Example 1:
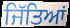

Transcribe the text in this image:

ਜਿੱਤਿਆਂ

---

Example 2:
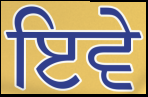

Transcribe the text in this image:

ਇਵੇ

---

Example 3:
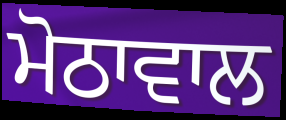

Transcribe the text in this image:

ਮੋਠਾਵਾਲ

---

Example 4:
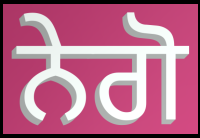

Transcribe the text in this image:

ਨੇਗੋ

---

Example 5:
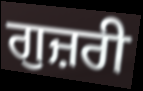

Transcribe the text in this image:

ਗੁਜ਼ਰੀ